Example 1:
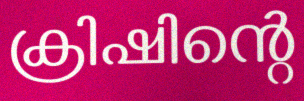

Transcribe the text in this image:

ക്രിഷിന്റെ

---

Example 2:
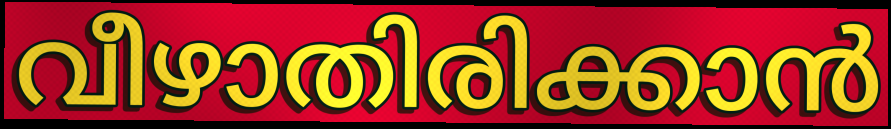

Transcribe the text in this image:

വീഴാതിരിക്കാൻ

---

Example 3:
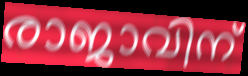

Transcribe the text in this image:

രാജാവിന്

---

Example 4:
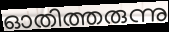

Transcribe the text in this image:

ഓതിത്തരുന്നു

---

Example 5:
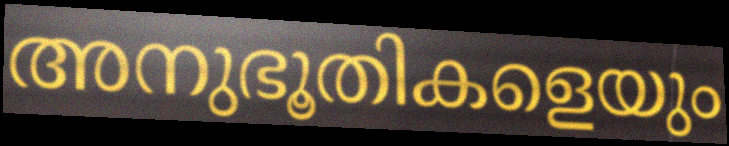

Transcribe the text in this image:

അനുഭൂതികളെയും